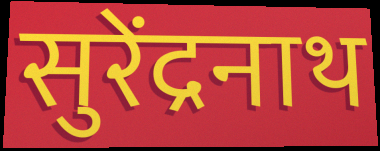
सुरेंद्रनाथ